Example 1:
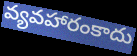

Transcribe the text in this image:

వ్యవహారంకాదు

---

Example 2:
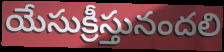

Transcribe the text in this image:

యేసుక్రీస్తునందలి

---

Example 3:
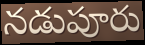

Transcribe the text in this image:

నడుపూరు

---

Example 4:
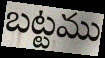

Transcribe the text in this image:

బట్టము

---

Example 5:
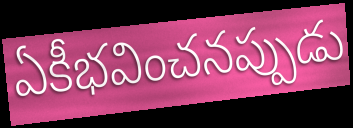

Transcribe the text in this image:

ఏకీభవించనప్పుడు